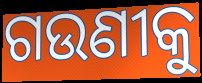
ଗଉଣୀକୁ